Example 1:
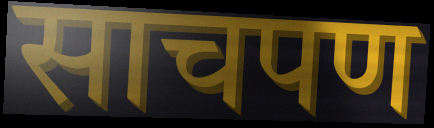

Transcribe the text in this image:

साचपण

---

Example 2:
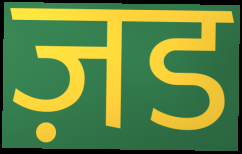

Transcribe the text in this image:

ज़ड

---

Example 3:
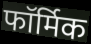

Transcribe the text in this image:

फॉर्मिक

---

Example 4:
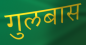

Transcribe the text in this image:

गुलबास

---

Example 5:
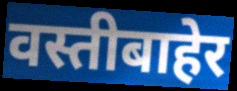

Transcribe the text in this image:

वस्तीबाहेर